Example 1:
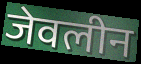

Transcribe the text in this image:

जेवलीन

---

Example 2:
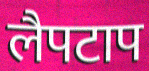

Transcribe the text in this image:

लैपटाप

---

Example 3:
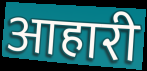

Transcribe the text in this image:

आहारी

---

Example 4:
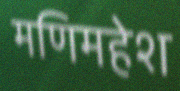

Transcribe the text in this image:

मणिमहेश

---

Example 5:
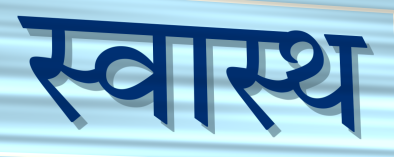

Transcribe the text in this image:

स्‍वास्‍थ